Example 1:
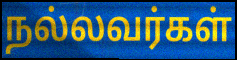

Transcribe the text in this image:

நல்லவர்கள்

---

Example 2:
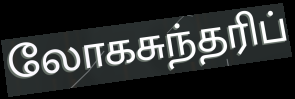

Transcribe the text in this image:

லோகசுந்தரிப்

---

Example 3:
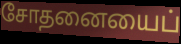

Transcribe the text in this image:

சோதனையைப்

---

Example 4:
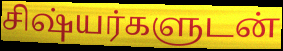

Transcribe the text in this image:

சிஷ்யர்களுடன்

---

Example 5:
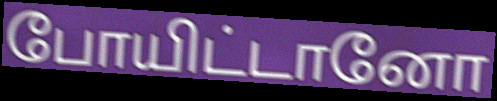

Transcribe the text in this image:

போயிட்டானோ